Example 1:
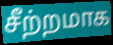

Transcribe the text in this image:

சீற்றமாக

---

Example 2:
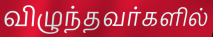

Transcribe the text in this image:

விழுந்தவர்களில்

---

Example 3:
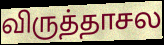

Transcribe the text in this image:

விருத்தாசல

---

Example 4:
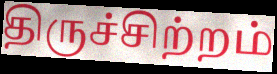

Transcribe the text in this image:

திருச்சிற்றம்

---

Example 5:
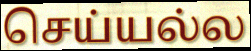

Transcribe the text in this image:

செய்யல்ல